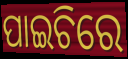
ପାଇଚିରେ